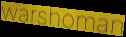
warshoman